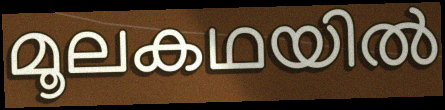
മൂലകഥയിൽ